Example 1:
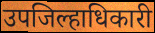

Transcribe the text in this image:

उपजिल्हाधिकारी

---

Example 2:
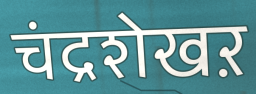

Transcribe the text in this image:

चंद्रशेखऱ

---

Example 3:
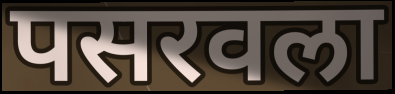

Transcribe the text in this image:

पसरवला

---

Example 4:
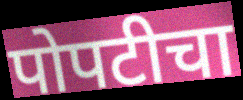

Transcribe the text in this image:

पोपटीचा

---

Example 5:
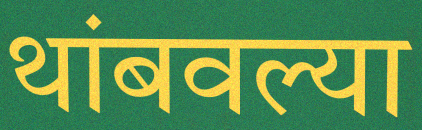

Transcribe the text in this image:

थांबवल्या